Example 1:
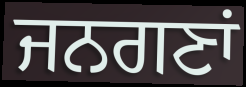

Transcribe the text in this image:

ਜਨਗਣਾਂ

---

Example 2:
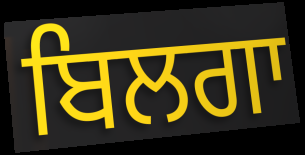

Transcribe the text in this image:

ਬਿਲਗਾ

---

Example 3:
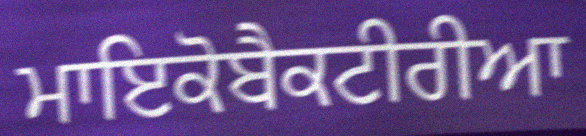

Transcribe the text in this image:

ਮਾਇਕੋਬੈਕਟੀਰੀਆ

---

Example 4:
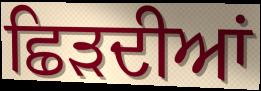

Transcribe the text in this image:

ਛਿੜਦੀਆਂ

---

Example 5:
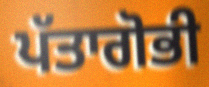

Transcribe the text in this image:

ਪੱਤਾਗੋਭੀ